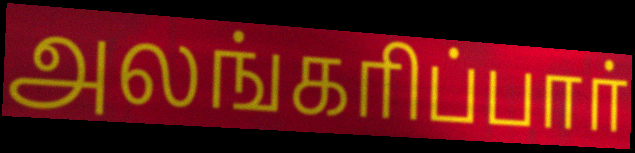
அலங்கரிப்பார்